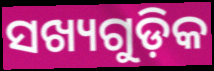
ସଖ୍ୟଗୁଡ଼ିକ